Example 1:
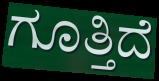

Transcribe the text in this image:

ಗೂತ್ತಿದೆ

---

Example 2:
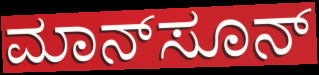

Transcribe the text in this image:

ಮಾನ್‌ಸೂನ್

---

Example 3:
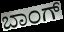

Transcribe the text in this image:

ಬಾಂಗ್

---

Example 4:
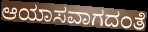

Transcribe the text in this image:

ಆಯಾಸವಾಗದಂತೆ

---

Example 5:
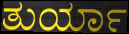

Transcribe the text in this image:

ತುರ್ಯಾ